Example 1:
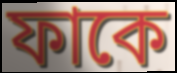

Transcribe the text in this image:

ফাকে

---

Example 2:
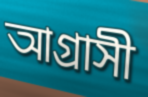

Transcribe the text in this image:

আগ্ৰাসী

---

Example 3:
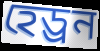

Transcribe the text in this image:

হেড্ৰন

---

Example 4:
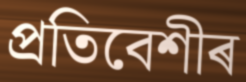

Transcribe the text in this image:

প্ৰতিবেশীৰ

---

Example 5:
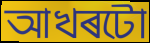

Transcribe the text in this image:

আখৰটো